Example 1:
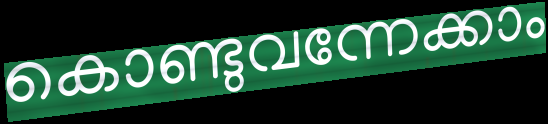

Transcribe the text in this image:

കൊണ്ടുവന്നേക്കാം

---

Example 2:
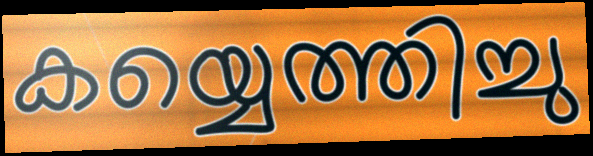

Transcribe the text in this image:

കയ്യെത്തിച്ചു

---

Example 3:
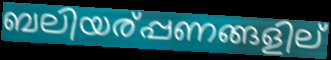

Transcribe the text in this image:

ബലിയര്പ്പണങ്ങളില്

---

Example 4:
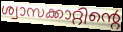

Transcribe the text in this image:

ശ്വാസക്കാറ്റിന്റെ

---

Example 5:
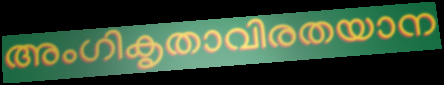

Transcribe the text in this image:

അംഗികൃതാവിരതയാന